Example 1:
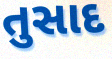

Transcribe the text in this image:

તુસાદ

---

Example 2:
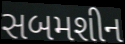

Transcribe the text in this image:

સબમશીન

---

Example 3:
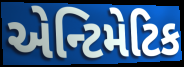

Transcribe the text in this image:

એન્ટિમેટિક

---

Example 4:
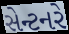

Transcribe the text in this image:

સેન્ટનરે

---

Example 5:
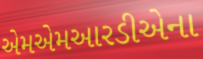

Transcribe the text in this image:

એમએમઆરડીએના